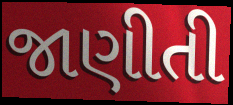
જાણીતી